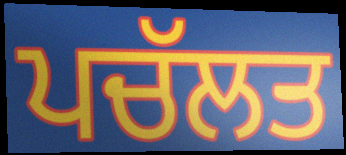
ਪਚੱਲਤ